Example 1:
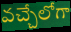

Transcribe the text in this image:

వచ్చేలోగా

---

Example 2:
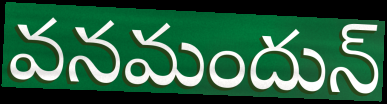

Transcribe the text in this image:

వనమందున్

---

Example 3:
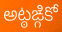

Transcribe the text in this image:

అట్ఠఙ్గికో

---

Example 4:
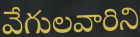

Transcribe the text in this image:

వేగులవారిని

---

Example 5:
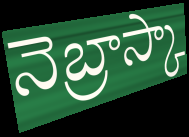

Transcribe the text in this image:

నెబ్రాస్కా